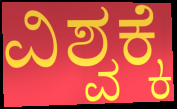
ವಿಶ್ವಕ್ಕೆ